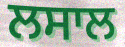
ਲਸਾਲ